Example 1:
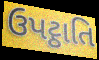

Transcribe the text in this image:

ઉપટ્ઠાતિ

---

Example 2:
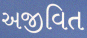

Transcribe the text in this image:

અજીવિત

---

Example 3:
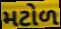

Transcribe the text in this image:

મટોળ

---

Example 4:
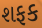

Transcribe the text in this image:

શફક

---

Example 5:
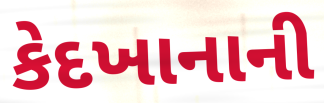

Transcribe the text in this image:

કેદખાનાની